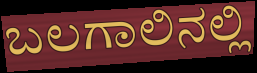
ಬಲಗಾಲಿನಲ್ಲಿ